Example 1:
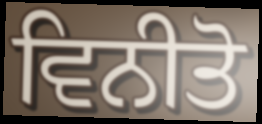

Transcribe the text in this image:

ਵਿਨੀਤੋ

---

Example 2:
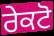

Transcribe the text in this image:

ਰੇਕਟੋ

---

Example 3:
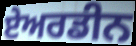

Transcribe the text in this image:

ਏਅਰਡੀਨ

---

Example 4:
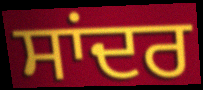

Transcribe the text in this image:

ਸਾਂਦਰ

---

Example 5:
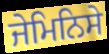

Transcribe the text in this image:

ਜੇਮਿਨਿਸੇ